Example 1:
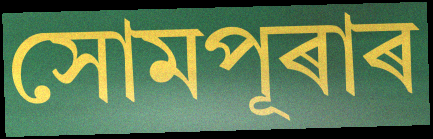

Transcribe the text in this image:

সোমপূৰাৰ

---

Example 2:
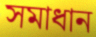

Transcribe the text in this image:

সমাধান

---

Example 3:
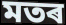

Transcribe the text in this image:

মতৰ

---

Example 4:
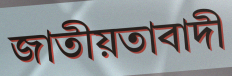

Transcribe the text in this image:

জাতীয়তাবাদী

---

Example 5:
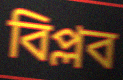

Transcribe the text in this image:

বিপ্লব